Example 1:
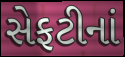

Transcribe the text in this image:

સેફટીનાં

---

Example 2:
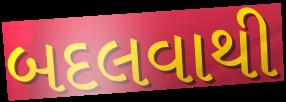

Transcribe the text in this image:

બદલવાથી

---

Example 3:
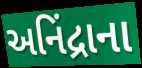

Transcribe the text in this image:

અનિંદ્રાના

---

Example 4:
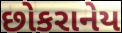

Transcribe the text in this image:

છોકરાનેય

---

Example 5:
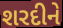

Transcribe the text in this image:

શરદીને